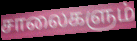
சாலைகளும்